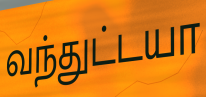
வந்துட்டயா